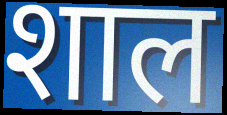
शाल